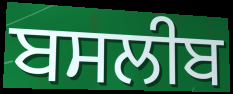
ਬਸਲੀਬ